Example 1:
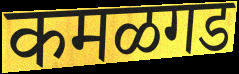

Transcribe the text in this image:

कमळगड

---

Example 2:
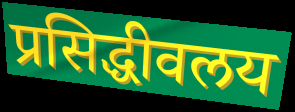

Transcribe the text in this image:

प्रसिद्धीवलय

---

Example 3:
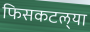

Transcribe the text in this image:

फिसकटल्या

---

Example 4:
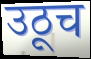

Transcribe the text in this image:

उठूच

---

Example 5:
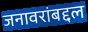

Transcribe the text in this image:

जनावरांबद्दल